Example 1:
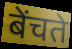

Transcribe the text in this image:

बेंचते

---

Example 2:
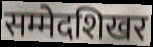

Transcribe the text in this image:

सम्मेदशिखर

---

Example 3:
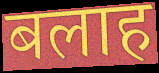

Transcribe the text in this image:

बलाह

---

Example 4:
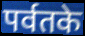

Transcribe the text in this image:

पर्वतके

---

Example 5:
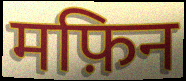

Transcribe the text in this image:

मफ़िन